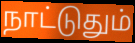
நாட்டுதும்